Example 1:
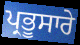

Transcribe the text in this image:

ਪ੍ਰਭੂਸਾਰੇ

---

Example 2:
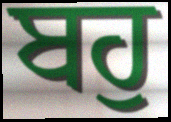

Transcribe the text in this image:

ਬਹੁ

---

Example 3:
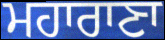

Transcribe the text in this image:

ਮਹਾਰਾਣਾ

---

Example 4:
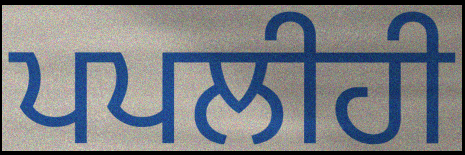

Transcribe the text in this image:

ਪਪਲੀਹੀ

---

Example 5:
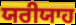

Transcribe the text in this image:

ਯਰੀਯਾਹ